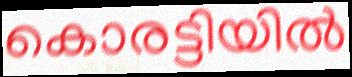
കൊരട്ടിയിൽ